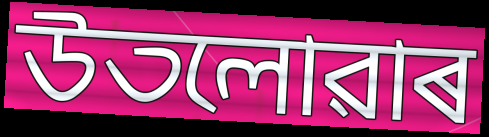
উতলোৱাৰ